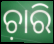
ଚ଼ାରି